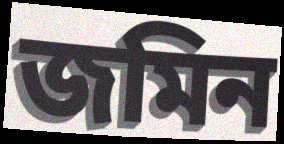
জমিন